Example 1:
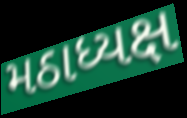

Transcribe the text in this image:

મઠાધ્યક્ષ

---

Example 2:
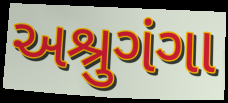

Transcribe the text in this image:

અશ્રુગંગા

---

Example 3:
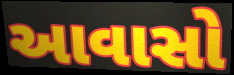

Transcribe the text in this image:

આવાસો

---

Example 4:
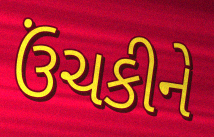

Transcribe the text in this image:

ઉંચકીને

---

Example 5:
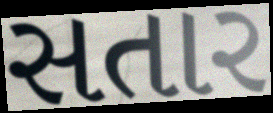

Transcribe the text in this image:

સતાર